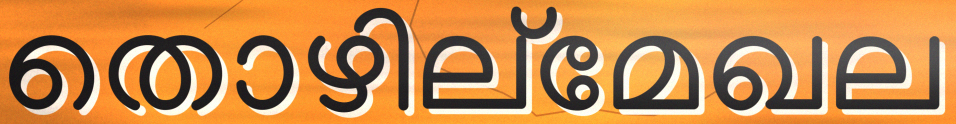
തൊഴില്മേഖല